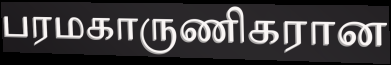
பரமகாருணிகரான